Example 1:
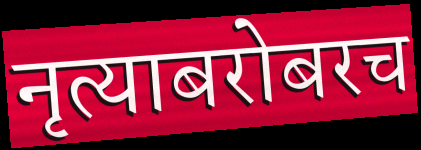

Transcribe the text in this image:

नृत्याबरोबरच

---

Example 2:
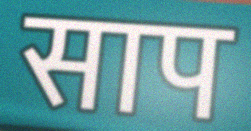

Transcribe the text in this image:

साप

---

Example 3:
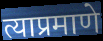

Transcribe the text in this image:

त्याप्रमाणे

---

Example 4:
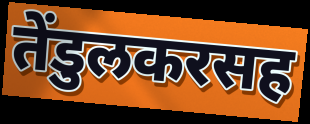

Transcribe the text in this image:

तेंडुलकरसह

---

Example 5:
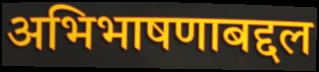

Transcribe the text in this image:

अभिभाषणाबद्दल